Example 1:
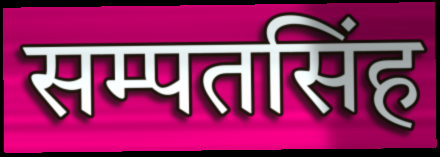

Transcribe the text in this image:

सम्पतसिंह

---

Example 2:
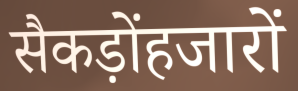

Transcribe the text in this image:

सैकड़ोंहजारों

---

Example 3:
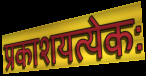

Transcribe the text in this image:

प्रकाशयत्येकः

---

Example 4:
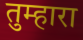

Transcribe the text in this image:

तुम्‍हारा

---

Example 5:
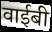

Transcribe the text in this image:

वाईबी